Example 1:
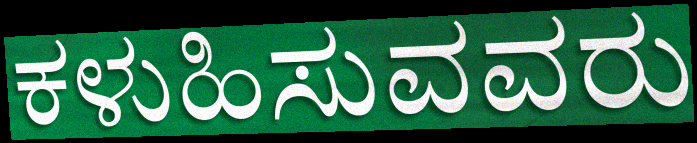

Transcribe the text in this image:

ಕಳುಹಿಸುವವರು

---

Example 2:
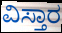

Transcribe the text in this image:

ವಿಸ್ತಾರ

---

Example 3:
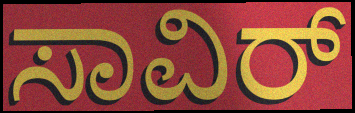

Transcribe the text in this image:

ಸಾವಿರ್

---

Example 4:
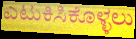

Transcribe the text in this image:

ಎಟುಕಿಸಿಕೊಳ್ಳಲು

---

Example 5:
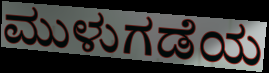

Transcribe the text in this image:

ಮುಳುಗಡೆಯ